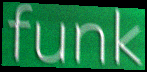
funk